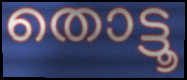
തൊട്ടൂ